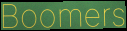
Boomers